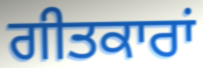
ਗੀਤਕਾਰਾਂ